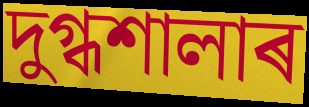
দুগ্ধশালাৰ